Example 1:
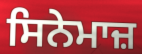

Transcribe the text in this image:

ਸਿਨੇਮਾਜ਼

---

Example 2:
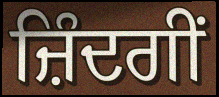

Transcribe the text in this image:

ਜ਼ਿੰਦਗੀਂ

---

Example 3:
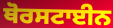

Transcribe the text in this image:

ਥੋਰਸਟਾਈਨ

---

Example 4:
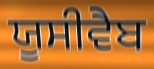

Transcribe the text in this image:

ਯੂਸੀਵੈਬ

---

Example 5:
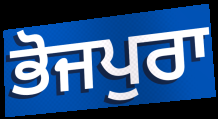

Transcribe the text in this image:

ਭੋਜਪੁਰਾ